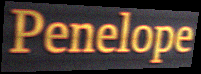
Penelope